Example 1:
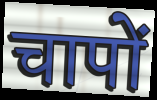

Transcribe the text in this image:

चापों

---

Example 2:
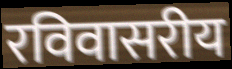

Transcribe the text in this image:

रविवासरीय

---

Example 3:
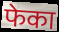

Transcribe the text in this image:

फेका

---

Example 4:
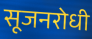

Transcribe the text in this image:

सूजनरोधी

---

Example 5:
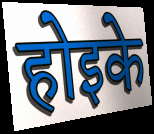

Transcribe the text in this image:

होइके